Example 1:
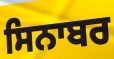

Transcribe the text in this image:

ਸਿਨਾਬਰ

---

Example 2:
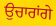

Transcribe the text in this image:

ਉਚਾਰਾਂਗੇ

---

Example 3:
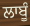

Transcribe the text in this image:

ਲਾਬੂੰ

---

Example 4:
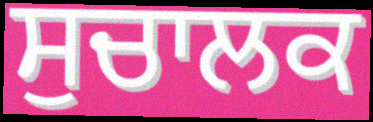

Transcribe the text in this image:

ਸੁਚਾਲਕ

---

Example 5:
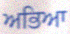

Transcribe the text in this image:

ਅਭਿਆ